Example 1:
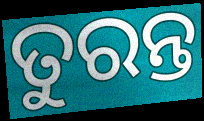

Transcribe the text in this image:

ତୁରନ୍ତ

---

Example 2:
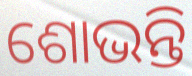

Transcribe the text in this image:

ଶୋଭନ୍ତି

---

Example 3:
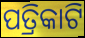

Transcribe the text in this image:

ପତ୍ରିକାଟି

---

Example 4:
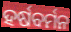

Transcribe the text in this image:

ହର୍ଷବର୍ମନ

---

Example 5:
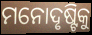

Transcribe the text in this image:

ମନୋଦୃଷ୍ଟିକୁ